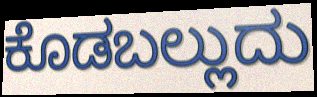
ಕೊಡಬಲ್ಲುದು